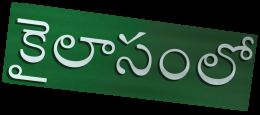
కైలాసంలో